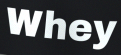
Whey